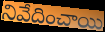
నివేదించాయి